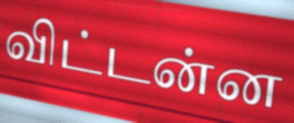
விட்டன்ன